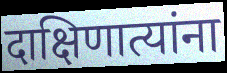
दाक्षिणात्यांना